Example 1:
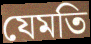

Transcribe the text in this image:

যেমতি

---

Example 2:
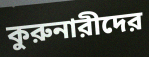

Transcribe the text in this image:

কুরুনারীদের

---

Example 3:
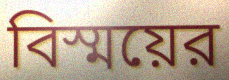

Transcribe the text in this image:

বিস্ময়ের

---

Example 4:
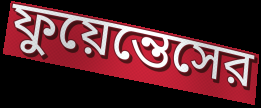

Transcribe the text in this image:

ফুয়েন্তেসের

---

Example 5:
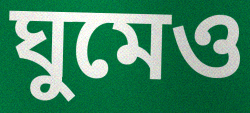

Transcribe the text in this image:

ঘুমেও